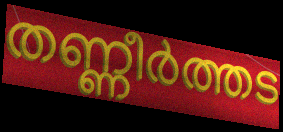
തണ്ണീർത്തട